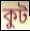
কুট